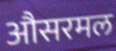
औसरमल